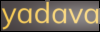
yadava